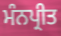
ਮੰਨਪ੍ਰੀਤ